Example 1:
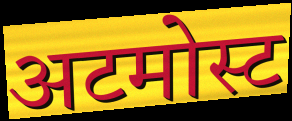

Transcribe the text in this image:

अटमोस्ट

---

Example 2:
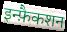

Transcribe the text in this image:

इन्फ़ैकशन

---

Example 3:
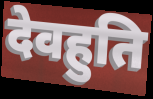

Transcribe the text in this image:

देवहुति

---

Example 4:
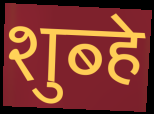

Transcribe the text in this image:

शुब्हे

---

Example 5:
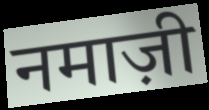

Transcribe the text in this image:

नमाज़ी